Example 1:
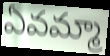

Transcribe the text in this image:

ఏవమ్మా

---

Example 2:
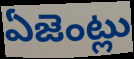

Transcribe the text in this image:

ఏజెంట్లు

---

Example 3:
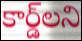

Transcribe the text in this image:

కార్డ్‌లని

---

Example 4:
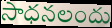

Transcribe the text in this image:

సాధనలందు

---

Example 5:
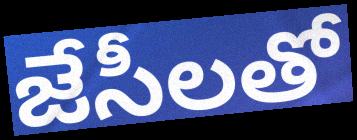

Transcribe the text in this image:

జేసీలతో